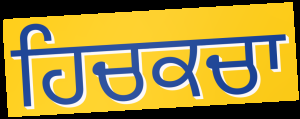
ਹਿਚਕਚਾ